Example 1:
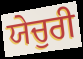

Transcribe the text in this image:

ਯੇਚੁਰੀ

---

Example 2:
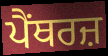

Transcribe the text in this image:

ਪੈਂਥਰਜ਼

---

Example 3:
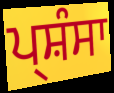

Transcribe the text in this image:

ਪ੍ਸ਼ੰਸਾ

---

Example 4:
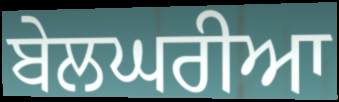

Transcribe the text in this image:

ਬੇਲਘਰੀਆ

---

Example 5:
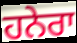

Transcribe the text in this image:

ਹਨੇਰਾ